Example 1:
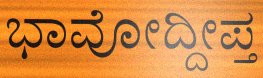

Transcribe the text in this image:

ಭಾವೋದ್ದೀಪ್ತ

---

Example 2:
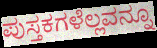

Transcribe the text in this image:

ಪುಸ್ತಕಗಳೆಲ್ಲವನ್ನೂ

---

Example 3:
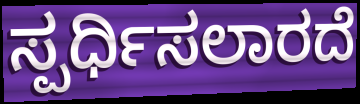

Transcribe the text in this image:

ಸ್ಪರ್ಧಿಸಲಾರದೆ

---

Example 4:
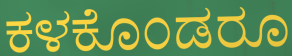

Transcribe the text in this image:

ಕಳಕೊಂಡರೂ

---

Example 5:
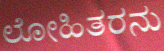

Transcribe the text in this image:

ಲೋಹಿತರನು